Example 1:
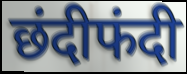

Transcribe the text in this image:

छंदीफंदी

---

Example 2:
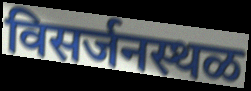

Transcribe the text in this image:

विसर्जनस्थळ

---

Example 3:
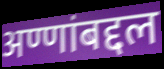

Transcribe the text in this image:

अण्णांबद्दल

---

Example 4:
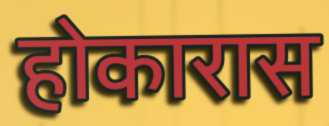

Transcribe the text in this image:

होकारास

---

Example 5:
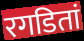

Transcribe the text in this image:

रगडितां